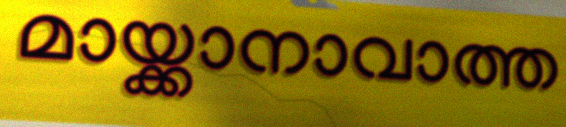
മായ്ക്കാനാവാത്ത